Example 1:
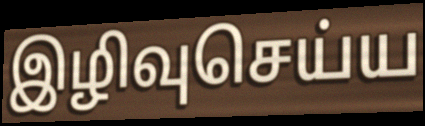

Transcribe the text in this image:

இழிவுசெய்ய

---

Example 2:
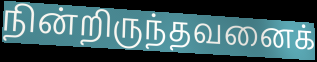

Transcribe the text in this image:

நின்றிருந்தவனைக்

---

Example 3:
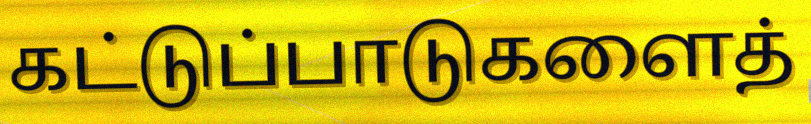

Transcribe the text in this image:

கட்டுப்பாடுகளைத்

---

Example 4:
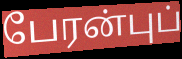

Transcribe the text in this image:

பேரன்புப்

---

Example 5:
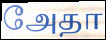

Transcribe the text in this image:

அேதா